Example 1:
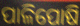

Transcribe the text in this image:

ପାଳିପୋଷି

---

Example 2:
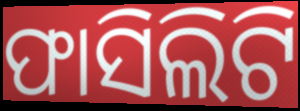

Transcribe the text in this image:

ଫାସିଲିଟି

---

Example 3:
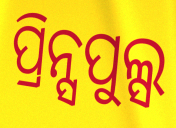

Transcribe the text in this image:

ପ୍ରିନ୍ସପୁଲ୍ସ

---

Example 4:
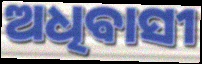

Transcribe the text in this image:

ଅଧିଵାସୀ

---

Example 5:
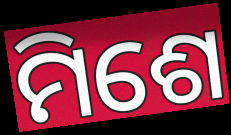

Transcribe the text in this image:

ମିଶେ